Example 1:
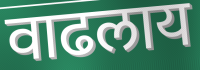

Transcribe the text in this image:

वाढलाय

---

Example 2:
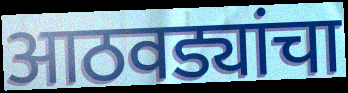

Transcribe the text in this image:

आठवड्यांचा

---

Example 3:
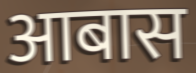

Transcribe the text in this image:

आबास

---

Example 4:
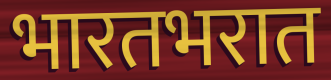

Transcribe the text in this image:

भारतभरात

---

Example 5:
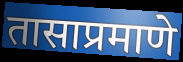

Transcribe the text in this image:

तासाप्रमाणे